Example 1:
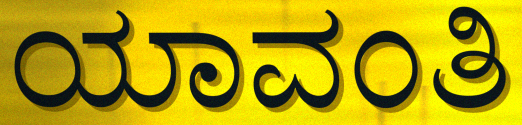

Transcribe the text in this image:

ಯಾವಂತಿ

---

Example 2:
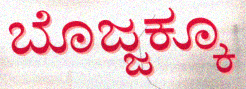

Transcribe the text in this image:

ಬೊಜ್ಜಕ್ಕೂ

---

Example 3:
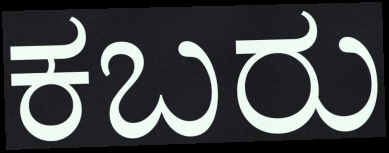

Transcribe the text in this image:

ಕಬರು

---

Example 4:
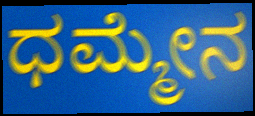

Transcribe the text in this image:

ಧಮ್ಮೇನ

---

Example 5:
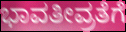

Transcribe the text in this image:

ಭಾವತೀವ್ರತೆಗೆ